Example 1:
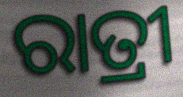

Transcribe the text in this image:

ରାତ୍ରୀ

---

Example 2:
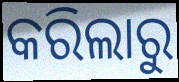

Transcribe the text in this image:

କରିଲାରୁ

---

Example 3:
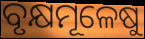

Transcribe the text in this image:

ବୃକ୍ଷମୂଳେଷୁ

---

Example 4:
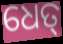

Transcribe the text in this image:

ଧେତ୍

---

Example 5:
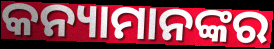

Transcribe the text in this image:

କନ୍ୟାମାନଙ୍କର